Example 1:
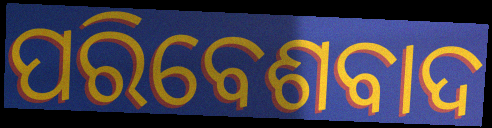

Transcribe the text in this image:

ପରିବେଶବାଦ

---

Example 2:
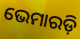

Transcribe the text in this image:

ଭେମାରଡ଼ି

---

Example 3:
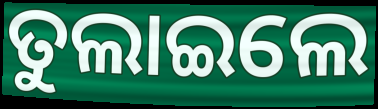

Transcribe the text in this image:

ତୁଲାଇଲେ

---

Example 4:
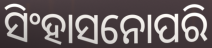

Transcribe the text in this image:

ସିଂହାସନୋପରି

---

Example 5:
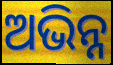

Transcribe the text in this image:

ଅଭିନ୍ନ